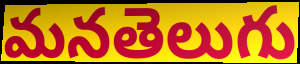
మనతెలుగు